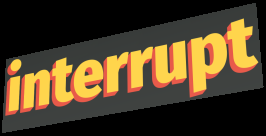
interrupt